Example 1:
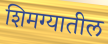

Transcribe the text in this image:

शिमग्यातील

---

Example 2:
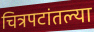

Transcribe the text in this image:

चित्रपटांतल्या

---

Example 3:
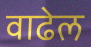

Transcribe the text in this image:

वाढेल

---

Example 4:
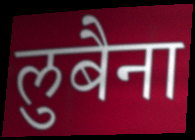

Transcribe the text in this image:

लुबैना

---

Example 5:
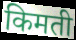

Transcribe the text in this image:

किमती